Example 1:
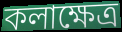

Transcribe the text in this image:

কলাক্ষেত্ৰ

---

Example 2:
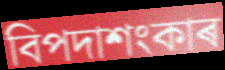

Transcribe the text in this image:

বিপদাশংকাৰ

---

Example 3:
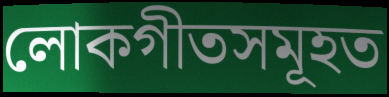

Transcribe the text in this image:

লোকগীতসমূহত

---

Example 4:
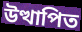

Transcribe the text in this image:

উত্থাপিত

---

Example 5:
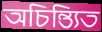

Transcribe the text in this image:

অচিন্ত্যিত